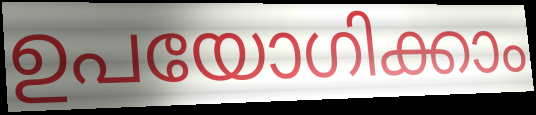
ഉപയോഗിക്കാം